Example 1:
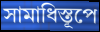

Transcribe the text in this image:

সামাধিস্তূপে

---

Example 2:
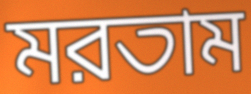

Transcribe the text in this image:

মরতাম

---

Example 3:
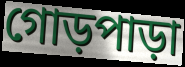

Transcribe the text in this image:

গোড়পাড়া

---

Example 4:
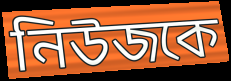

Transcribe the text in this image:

নিউজকে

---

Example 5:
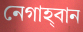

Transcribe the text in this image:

নেগাহ্‌বান